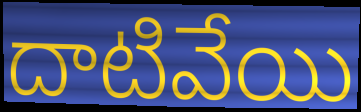
దాటివేయి